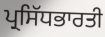
ਪ੍ਰਸਿੱਧਭਾਰਤੀ